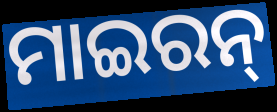
ମାଇରନ୍